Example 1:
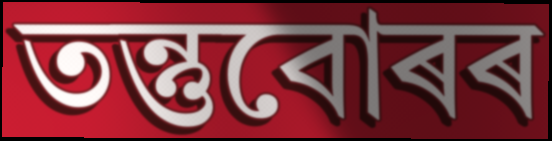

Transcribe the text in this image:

তন্তুবোৰৰ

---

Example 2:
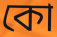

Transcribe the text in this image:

কো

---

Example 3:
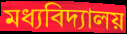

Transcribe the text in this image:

মধ্যবিদ্যালয়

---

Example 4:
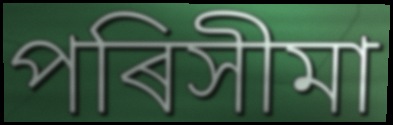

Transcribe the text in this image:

পৰিসীমা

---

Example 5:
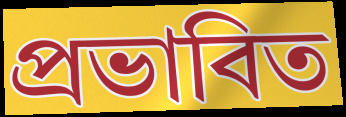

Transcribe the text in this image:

প্ৰভাবিত